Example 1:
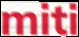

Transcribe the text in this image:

miti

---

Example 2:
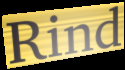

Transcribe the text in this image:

Rind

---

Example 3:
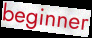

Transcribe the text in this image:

beginner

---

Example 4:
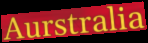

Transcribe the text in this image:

Aurstralia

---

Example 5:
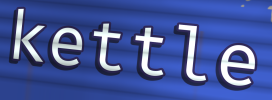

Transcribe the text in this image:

kettle